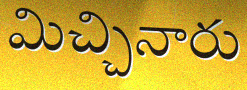
మిచ్చినారు